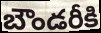
బౌండరీకి